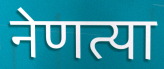
नेणत्या